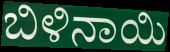
ಬಿಳಿನಾಯಿ